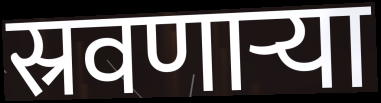
स्रवणाऱ्या